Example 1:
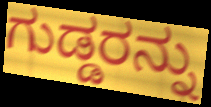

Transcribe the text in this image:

ಗುಡ್ಡರನ್ನು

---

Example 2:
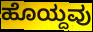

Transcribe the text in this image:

ಹೊಯ್ದವು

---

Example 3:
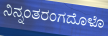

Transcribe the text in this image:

ನಿನ್ನಂತರಂಗದೊಳೊ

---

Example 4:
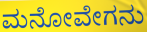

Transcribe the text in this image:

ಮನೋವೇಗನು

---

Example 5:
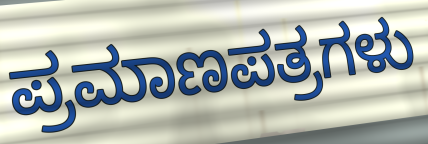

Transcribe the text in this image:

ಪ್ರಮಾಣಪತ್ರಗಳು